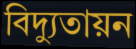
বিদ্যুতায়ন